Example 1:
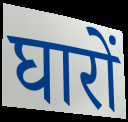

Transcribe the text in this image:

घारों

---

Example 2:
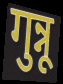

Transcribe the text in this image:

गुन्नू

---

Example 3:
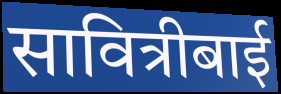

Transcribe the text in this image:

सावित्रीबाई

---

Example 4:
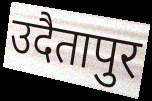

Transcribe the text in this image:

उदैतापुर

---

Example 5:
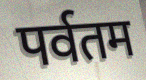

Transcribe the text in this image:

पर्वतम